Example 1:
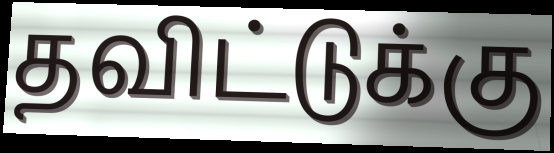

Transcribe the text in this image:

தவிட்டுக்கு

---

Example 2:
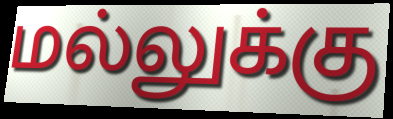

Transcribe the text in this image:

மல்லுக்கு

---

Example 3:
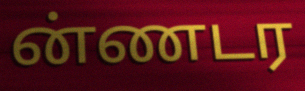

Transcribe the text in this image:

ன்ணடர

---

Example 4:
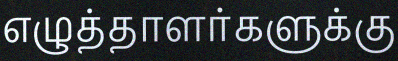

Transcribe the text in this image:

எழுத்தாளர்களுக்கு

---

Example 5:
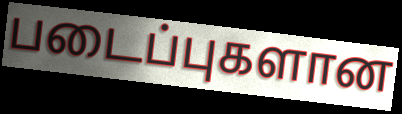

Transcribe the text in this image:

படைப்புகளான